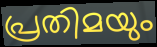
പ്രതിമയും